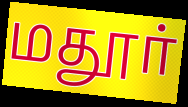
மதூர்